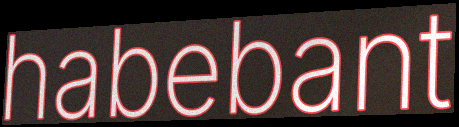
habebant